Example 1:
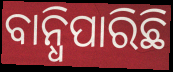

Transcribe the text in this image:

ବାନ୍ଧିପାରିଛି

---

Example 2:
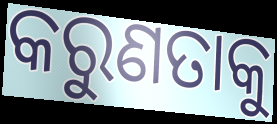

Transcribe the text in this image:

କରୁଣତାକୁ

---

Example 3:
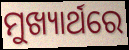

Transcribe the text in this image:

ମୁଖ୍ୟାର୍ଥରେ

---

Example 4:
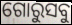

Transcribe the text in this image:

ଗୋରୁସବୁ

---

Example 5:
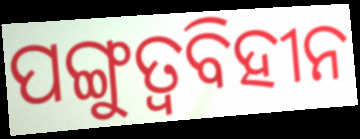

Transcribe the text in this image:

ପଙ୍ଗୁତ୍ୱବିହୀନ